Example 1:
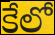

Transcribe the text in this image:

కేలో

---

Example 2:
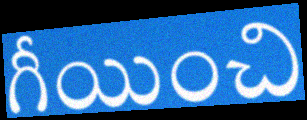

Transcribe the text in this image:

గీయించి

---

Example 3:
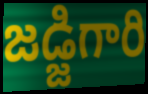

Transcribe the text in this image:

జడ్జిగారి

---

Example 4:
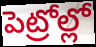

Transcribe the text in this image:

పెట్రోల్లో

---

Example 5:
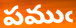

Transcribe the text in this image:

పముఁ